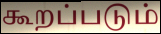
கூறப்படும்